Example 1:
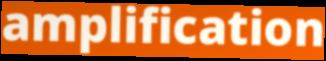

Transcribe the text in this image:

amplification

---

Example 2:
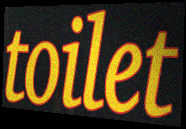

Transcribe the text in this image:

toilet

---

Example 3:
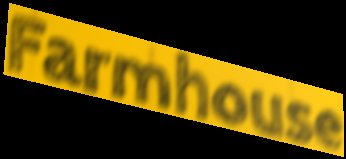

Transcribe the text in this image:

Farmhouse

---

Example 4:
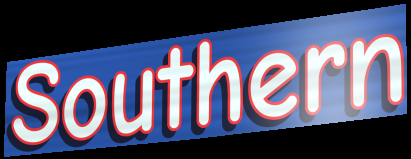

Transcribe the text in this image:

Southern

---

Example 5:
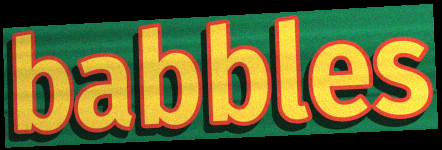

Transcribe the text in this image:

babbles